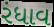
રંધાવ